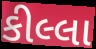
કીલ્લા